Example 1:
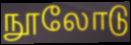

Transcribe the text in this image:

நூலோடு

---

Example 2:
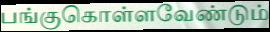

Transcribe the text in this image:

பங்குகொள்ளவேண்டும்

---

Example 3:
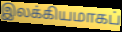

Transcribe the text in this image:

இலக்கியமாகப்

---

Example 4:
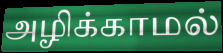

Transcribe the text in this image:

அழிக்காமல்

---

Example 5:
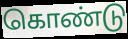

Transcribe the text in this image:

கொண்டு